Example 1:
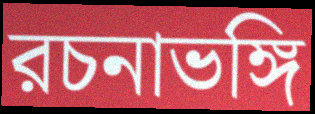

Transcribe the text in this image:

রচনাভঙ্গি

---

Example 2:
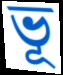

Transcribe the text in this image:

ভূ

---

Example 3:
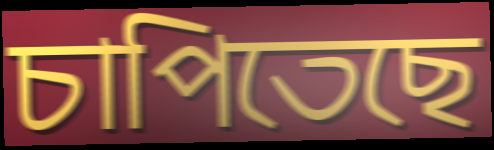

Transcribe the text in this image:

চাপিতেছে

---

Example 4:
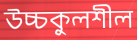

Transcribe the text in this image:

উচ্চকুলশীল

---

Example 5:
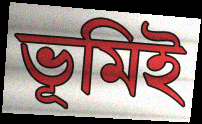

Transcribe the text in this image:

ভূমিই